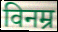
विनम्र